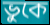
ভুকে